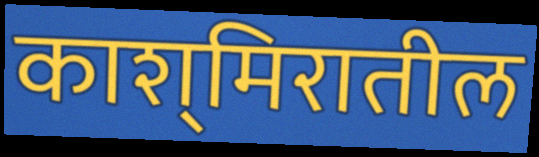
काश्मिरातील